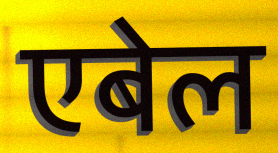
एबेल